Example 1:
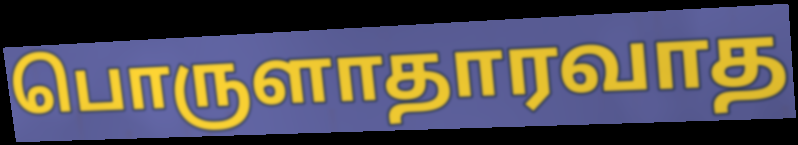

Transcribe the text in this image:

பொருளாதாரவாத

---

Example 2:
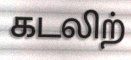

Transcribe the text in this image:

கடலிற்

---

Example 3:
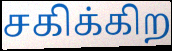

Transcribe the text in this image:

சகிக்கிற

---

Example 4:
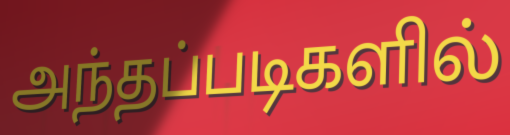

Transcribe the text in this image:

அந்தப்படிகளில்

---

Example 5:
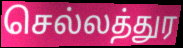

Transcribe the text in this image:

செல்லத்துர